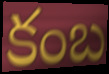
కంబ